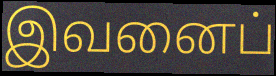
இவனைப்